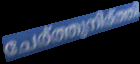
ചേര്ത്തുനിര്ത്തി